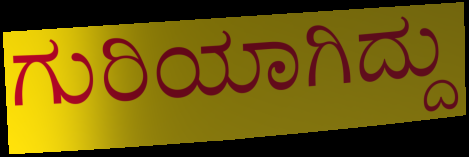
ಗುರಿಯಾಗಿದ್ದು